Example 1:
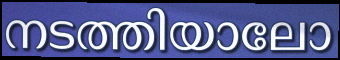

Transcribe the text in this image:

നടത്തിയാലോ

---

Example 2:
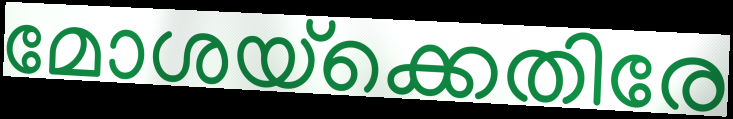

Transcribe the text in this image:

മോശയ്‌ക്കെതിരേ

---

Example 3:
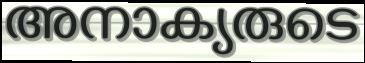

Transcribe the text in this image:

അനാക്യരുടെ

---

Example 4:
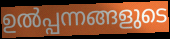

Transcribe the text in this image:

ഉൽപ്പന്നങ്ങളുടെ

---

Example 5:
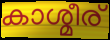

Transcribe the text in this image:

കാശ്മീര്